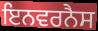
ਇਨਵਰਨੈਸ